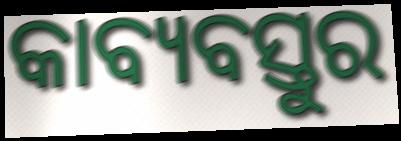
କାବ୍ୟବସ୍ତୁର